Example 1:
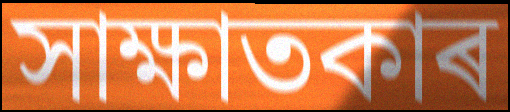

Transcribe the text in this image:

সাক্ষাতকাৰ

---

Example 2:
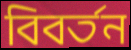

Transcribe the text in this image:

বিবৰ্তন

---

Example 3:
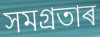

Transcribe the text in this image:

সমগ্ৰতাৰ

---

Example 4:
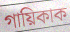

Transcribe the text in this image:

গায়িকাক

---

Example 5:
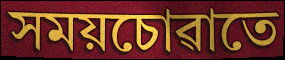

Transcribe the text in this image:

সময়চোৱাতে